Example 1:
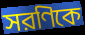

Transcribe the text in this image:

সরণিকে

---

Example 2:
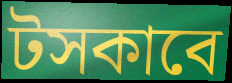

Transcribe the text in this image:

টসকাবে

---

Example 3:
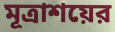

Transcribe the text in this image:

মূত্রাশয়ের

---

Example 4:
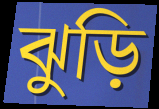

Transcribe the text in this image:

ঝুড়ি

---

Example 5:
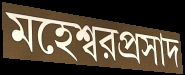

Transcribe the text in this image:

মহেশ্বরপ্রসাদ